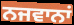
ਨਜਵਾਨਾਂ